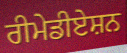
ਰੀਮੇਡੀਏਸ਼ਨ